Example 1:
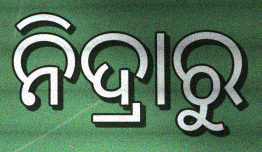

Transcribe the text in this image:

ନିଦ୍ରାରୁ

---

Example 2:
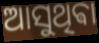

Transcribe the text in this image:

ଆସୁଥିଵା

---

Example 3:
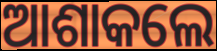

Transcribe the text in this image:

ଆଶାକଲେ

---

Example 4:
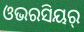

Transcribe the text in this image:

ଓଭରସିୟର୍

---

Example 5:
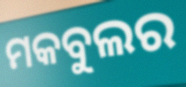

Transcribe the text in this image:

ମକବୁଲର